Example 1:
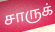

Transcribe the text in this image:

சாருக்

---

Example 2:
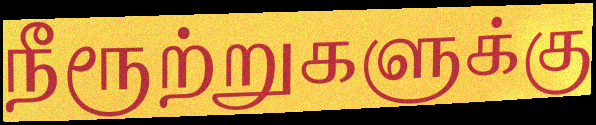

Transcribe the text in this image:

நீரூற்றுகளுக்கு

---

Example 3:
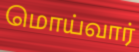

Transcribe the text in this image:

மொய்வார்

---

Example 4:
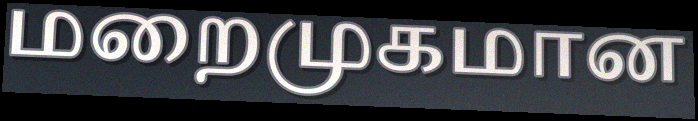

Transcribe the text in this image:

மறைமுகமான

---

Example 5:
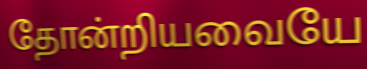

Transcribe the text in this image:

தோன்றியவையே